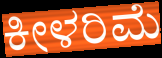
ಕೀಳರಿಮೆ